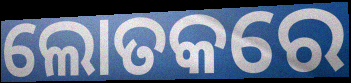
ଲୋତକରେ